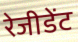
रेजीडेंट